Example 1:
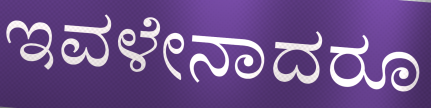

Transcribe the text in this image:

ಇವಳೇನಾದರೂ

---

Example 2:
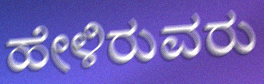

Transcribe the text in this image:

ಹೇಳಿರುವರು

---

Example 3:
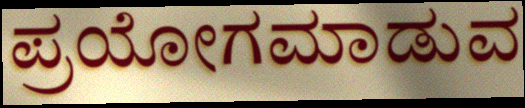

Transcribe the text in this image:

ಪ್ರಯೋಗಮಾಡುವ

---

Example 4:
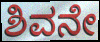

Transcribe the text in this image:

ಶಿವನೇ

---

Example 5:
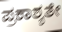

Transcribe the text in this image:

ಪ್ರಕಾಶ್ಯತೇ